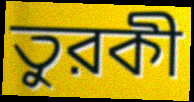
তুরকী